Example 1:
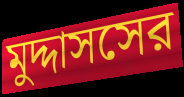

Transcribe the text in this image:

মুদ্দাসসের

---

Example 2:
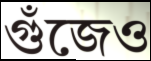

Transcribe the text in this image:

গুঁজেও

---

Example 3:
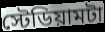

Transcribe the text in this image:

স্টেডিয়ামটা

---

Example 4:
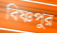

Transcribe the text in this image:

বিষ্ণপুর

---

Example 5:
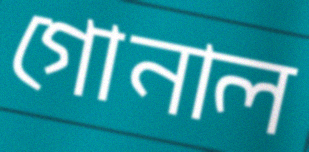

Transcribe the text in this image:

গোনাল